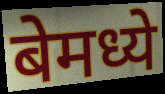
बेमध्ये